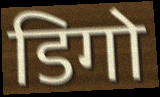
डिगो